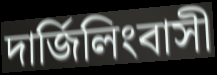
দার্জিলিংবাসী